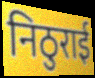
निठुराई